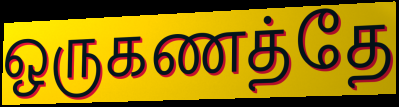
ஒருகணத்தே